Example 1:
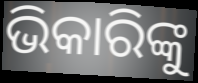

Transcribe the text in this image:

ଭିକାରିଙ୍କୁ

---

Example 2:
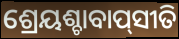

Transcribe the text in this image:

ଶ୍ରେୟଶ୍ଚାବାପ୍‌ସୀତି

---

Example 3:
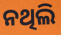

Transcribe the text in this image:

ନଥିଲି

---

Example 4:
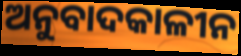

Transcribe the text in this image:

ଅନୁବାଦକାଳୀନ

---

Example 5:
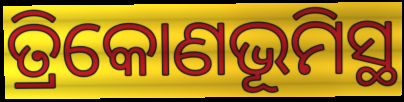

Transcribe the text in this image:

ତ୍ରିକୋଣଭୂମିସ୍ଥ